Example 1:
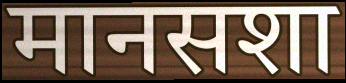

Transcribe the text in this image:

मानसशा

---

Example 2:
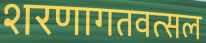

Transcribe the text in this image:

शरणागतवत्सल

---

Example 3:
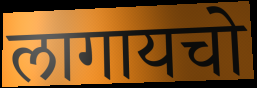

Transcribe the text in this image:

लागायचो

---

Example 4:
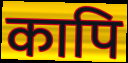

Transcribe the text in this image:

कापि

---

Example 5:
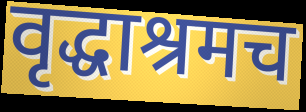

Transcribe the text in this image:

वृद्धाश्रमच